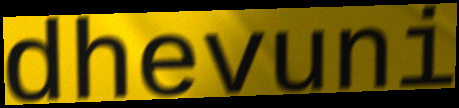
dhevuni